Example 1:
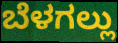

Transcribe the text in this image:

ಬೆಳಗಲ್ಲು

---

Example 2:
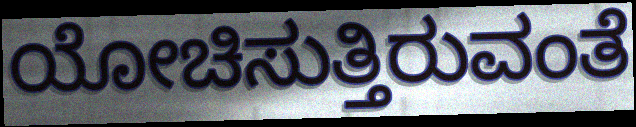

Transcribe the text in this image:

ಯೋಚಿಸುತ್ತಿರುವಂತೆ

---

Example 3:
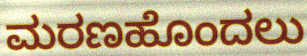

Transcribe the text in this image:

ಮರಣಹೊಂದಲು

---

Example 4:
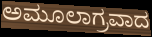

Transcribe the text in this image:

ಅಮೂಲಾಗ್ರವಾದ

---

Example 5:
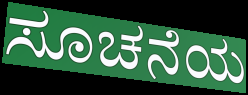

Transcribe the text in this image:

ಸೂಚನೆಯ